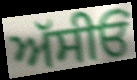
ਅੱਸੀਓਂ